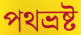
পথভ্রষ্ট